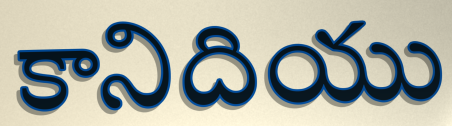
కానిదియు